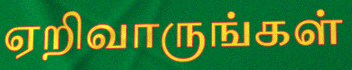
ஏறிவாருங்கள்